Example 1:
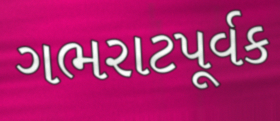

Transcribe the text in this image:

ગભરાટપૂર્વક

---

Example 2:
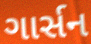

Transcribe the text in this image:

ગાર્સન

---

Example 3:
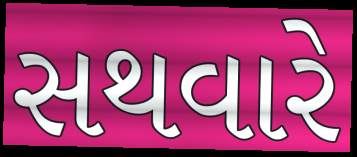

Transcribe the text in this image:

સથવારે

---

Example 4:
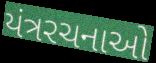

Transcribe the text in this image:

યંત્રરચનાઓ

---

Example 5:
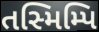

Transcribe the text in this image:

તસ્મિમ્પિ